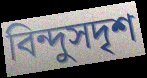
বিন্দুসদৃশ